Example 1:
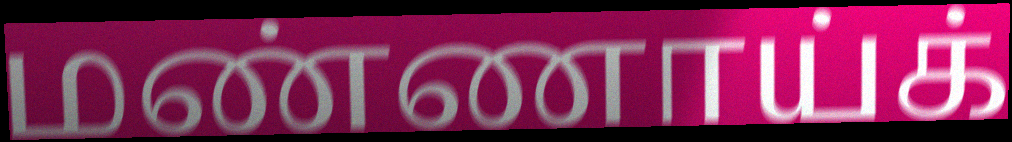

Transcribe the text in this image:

மண்ணாய்க்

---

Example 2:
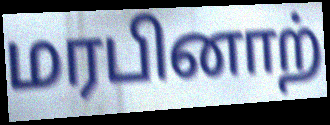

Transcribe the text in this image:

மரபினாற்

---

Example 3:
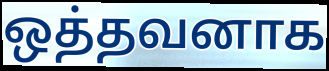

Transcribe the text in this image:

ஒத்தவனாக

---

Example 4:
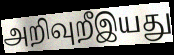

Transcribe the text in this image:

அறிவுறீஇயது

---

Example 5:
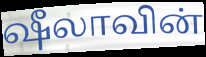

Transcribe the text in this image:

ஷீலாவின்